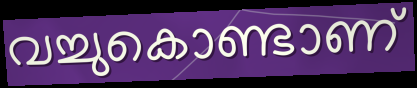
വച്ചുകൊണ്ടാണ്